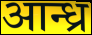
आन्ध्र